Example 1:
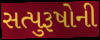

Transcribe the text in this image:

સત્પુરૂષોની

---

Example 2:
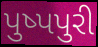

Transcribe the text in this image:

પુષ્પપુરી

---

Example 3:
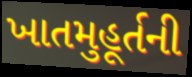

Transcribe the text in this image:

ખાતમુહૂર્તની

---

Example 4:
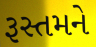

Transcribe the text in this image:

રૂસ્તમને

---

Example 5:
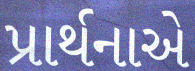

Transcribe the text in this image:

પ્રાર્થનાએ